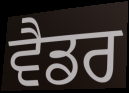
ਵੈਡਰ